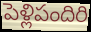
పెళ్లిపందిరి